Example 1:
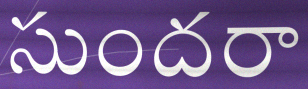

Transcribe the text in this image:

సుందరా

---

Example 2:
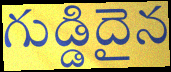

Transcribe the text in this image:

గుడ్డిదైన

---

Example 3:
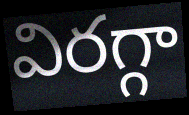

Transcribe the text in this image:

విరగ్గా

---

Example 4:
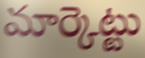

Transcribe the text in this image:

మార్కెట్టు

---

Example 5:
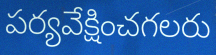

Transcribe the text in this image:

పర్యవేక్షించగలరు